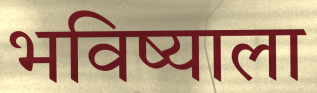
भविष्याला